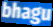
bhagu